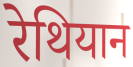
रेथियान